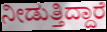
ನೀಡುತ್ತಿದ್ದಾರೆ